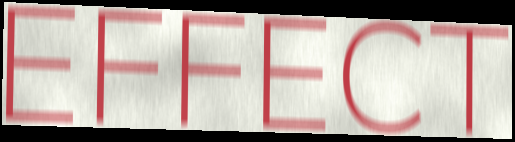
EFFECT